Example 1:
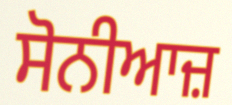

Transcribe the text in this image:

ਸੋਨੀਆਜ਼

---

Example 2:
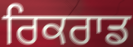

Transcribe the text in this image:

ਰਿਕਰਾਡ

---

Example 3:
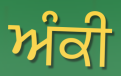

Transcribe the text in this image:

ਅੰਕੀ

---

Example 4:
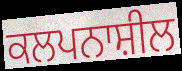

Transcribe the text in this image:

ਕਲਪਨਾਸ਼ੀਲ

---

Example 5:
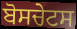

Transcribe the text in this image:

ਬੋਸਚੇਟਸ